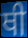
ਥੀ